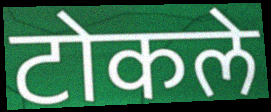
टोकले